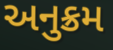
અનુક્રમ